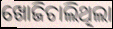
ଖୋଜିଚାଲିଥିଲା